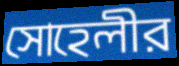
সোহেলীর